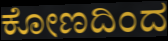
ಕೋಣದಿಂದ